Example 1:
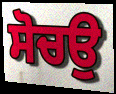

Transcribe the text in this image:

ਸੋਚਉ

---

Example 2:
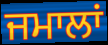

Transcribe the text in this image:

ਜਮਾਲਾਂ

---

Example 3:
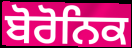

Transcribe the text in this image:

ਬੋਰੋਨਿਕ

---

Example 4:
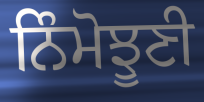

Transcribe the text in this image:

ਨਿੰਮੋਝੂਣੀ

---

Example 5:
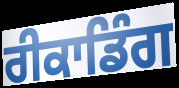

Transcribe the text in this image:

ਰੀਕਾਡਿੰਗ